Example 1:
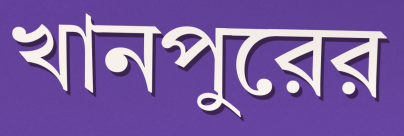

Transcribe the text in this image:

খানপুরের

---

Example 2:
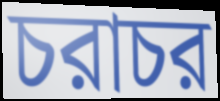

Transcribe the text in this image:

চরাচর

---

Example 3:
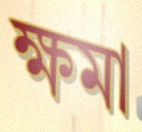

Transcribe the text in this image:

ক্ষমা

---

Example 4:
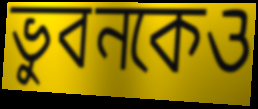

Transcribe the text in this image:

ভুবনকেও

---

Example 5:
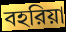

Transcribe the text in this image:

বহরিয়া